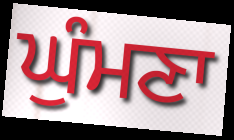
ਘੁੰਮਣਾ